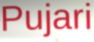
Pujari